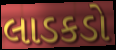
લાડકડો